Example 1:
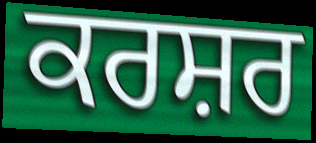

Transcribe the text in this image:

ਕਰਸ਼ਰ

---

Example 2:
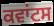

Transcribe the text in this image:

ਕਵਾਂਟਸ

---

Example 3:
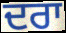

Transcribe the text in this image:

ਦਰਾ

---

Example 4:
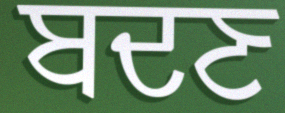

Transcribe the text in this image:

ਬਦਣ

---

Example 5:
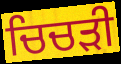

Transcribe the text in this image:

ਚਿਚੜੀ